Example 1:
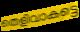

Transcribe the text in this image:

തെളിവാകട്ടെ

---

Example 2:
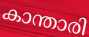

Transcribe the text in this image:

കാന്താരി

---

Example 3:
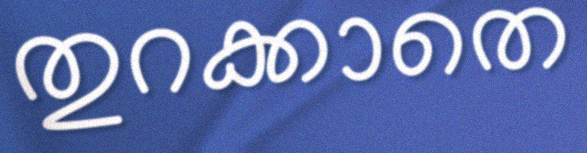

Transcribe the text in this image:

തുറക്കാതെ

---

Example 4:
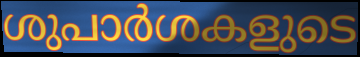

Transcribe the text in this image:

ശുപാർശകളുടെ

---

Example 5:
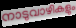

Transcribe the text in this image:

നാടുവാഴികളും